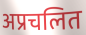
अप्रचलित